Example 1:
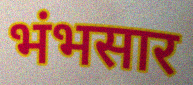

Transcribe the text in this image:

भंभसार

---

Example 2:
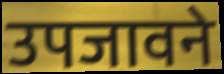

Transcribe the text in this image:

उपजावने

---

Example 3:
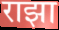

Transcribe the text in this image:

राझा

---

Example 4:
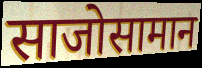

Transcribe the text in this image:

साजोसामान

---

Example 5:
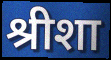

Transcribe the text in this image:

श्रीशा